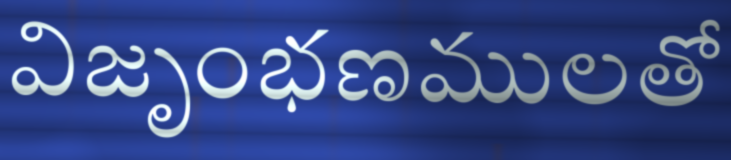
విజృంభణములతో